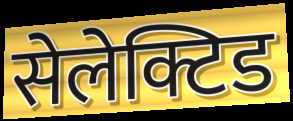
सेलेक्टिड